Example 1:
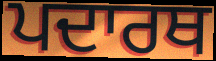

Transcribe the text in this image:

ਪਦਾਰਥ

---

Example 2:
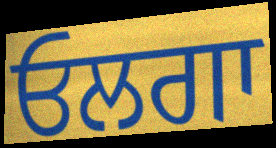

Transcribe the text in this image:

ਓਲਗਾ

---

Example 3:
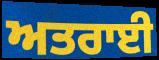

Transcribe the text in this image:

ਅਤਰਾਈ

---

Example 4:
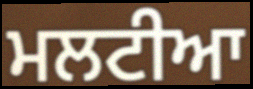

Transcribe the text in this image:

ਮਲਟੀਆ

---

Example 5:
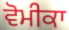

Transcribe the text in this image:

ਵੋਮੀਕਾ